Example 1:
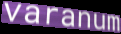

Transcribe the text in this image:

varanum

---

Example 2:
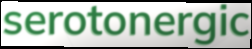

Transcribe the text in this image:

serotonergic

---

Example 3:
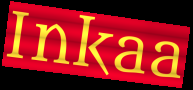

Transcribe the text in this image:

Inkaa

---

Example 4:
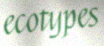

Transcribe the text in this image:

ecotypes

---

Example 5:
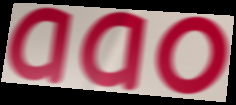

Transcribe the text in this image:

aao